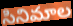
సినిమాల